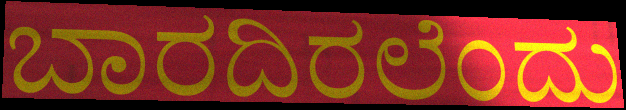
ಬಾರದಿರಲೆಂದು